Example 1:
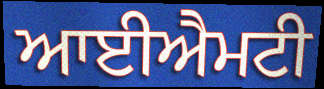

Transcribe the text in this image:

ਆਈਐਮਟੀ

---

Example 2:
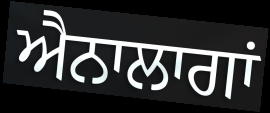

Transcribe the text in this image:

ਐਨਾਲਾਗਾਂ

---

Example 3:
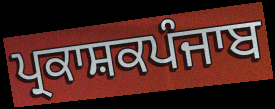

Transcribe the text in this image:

ਪ੍ਰਕਾਸ਼ਕਪੰਜਾਬ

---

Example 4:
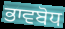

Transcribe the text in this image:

ਭਾਵਬੋਧ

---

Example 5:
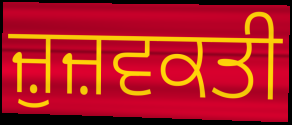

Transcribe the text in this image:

ਜ਼ੁਜ਼ਵਕਤੀ